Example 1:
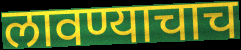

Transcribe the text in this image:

लावण्याचाच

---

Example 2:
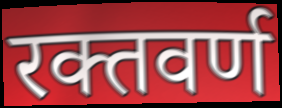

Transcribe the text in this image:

रक्तवर्ण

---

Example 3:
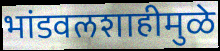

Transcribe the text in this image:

भांडवलशाहीमुळे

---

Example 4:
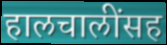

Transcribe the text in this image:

हालचालींसह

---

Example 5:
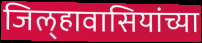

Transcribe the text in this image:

जिल्हावासियांच्या